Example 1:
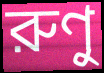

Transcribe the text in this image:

রুণু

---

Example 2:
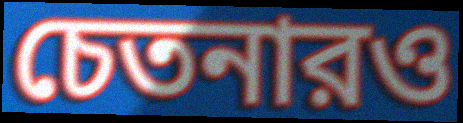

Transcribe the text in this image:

চেতনারও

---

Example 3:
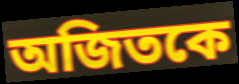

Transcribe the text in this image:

অজিতকে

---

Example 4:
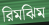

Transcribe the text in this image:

রিমঝিম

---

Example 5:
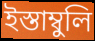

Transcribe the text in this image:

ইস্তাম্বুলি